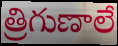
త్రిగుణాలే